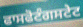
ਫਾਸਫੋਟੰਗਸਟੇਟ